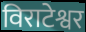
विराटेश्वर